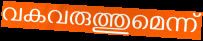
വകവരുത്തുമെന്ന്